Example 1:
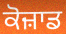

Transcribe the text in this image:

ਕੋਜ਼ਾਡ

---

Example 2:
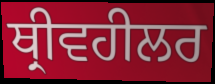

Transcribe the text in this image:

ਥ੍ਰੀਵਹੀਲਰ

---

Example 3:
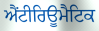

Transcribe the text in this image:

ਐਂਟੀਰਿਊਮੈਟਿਕ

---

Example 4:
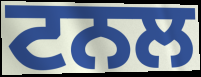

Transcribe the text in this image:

ਟਨਲ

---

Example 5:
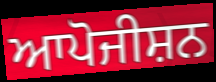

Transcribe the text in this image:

ਆਪੋਜੀਸ਼ਨ